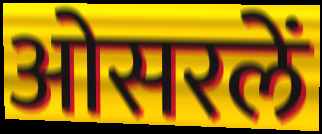
ओसरलें